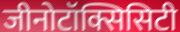
जीनोटॉक्सिसिटी